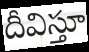
దీవిస్తూ